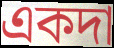
একদা